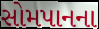
સોમપાનના